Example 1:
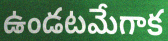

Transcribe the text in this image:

ఉండటమేగాక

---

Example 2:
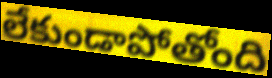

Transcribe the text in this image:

లేకుండాపోతోంది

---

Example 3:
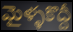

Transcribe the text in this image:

మైళ్ళకొద్దీ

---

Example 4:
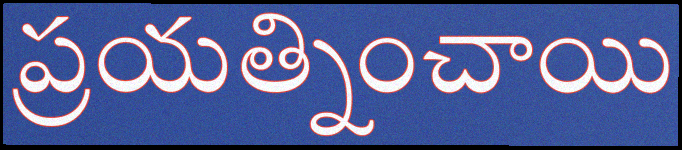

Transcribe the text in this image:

ప్రయత్నించాయి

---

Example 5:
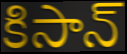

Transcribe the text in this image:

కిసాన్